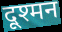
दूश्मन